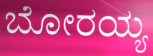
ಬೋರಯ್ಯ